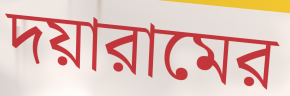
দয়ারামের